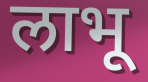
लाभू